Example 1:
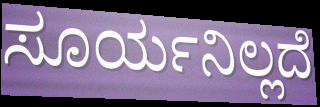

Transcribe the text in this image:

ಸೂರ್ಯನಿಲ್ಲದೆ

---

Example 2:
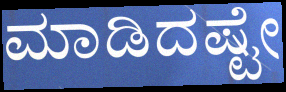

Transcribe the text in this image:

ಮಾಡಿದಷ್ಟೇ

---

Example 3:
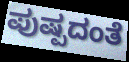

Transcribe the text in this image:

ಪುಷ್ಪದಂತೆ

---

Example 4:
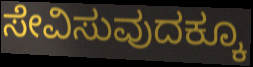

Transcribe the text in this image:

ಸೇವಿಸುವುದಕ್ಕೂ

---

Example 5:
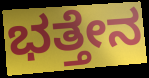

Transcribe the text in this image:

ಭತ್ತೇನ